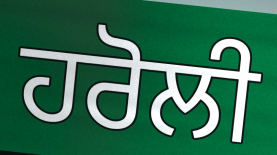
ਹਰੋਲੀ